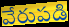
వేరుపడి